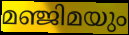
മഞ്ജിമയും